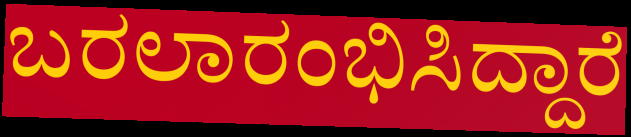
ಬರಲಾರಂಭಿಸಿದ್ದಾರೆ